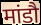
मांडौ